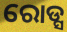
ରୋଡ୍ସ